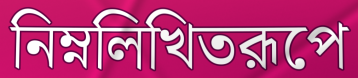
নিম্নলিখিতরূপে